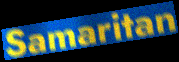
Samaritan